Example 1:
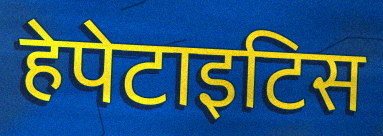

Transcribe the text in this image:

हेपेटाइटिस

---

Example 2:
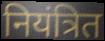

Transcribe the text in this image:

नियंत्रित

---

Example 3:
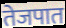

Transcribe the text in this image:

तेजपात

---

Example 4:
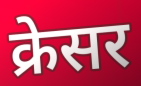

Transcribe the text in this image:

क्रेसर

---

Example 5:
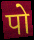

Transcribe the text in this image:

पो